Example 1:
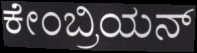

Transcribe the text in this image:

ಕೇಂಬ್ರಿಯನ್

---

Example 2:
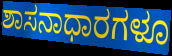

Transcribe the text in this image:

ಶಾಸನಾಧಾರಗಳೂ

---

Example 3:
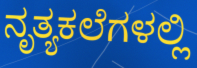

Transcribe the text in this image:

ನೃತ್ಯಕಲೆಗಳಲ್ಲಿ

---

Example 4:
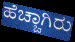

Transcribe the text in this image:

ಹೆಚ್ಚಾಗಿರು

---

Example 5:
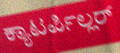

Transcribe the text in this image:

ಕ್ಯಾಟರ್ಪಿಲ್ಲರ್